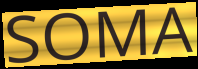
SOMA